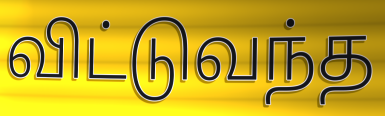
விட்டுவந்த